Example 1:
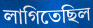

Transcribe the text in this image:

লাগিতেছিল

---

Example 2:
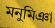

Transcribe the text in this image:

মনুমিঞা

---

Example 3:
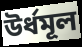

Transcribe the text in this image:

উর্ধমূল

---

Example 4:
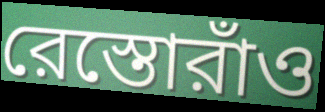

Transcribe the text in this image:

রেস্তোরাঁও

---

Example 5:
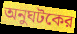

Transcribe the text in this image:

অনুঘটকের